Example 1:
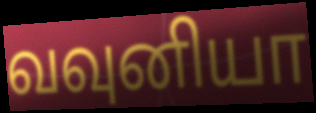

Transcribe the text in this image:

வவுனியா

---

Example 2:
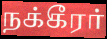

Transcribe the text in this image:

நக்கீரர்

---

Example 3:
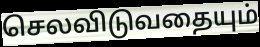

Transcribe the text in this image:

செலவிடுவதையும்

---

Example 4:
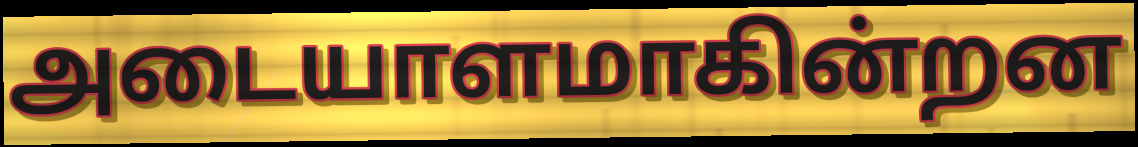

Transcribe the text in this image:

அடையாளமாகின்றன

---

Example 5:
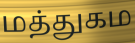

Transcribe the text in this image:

மத்துகம